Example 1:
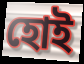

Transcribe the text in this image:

হোই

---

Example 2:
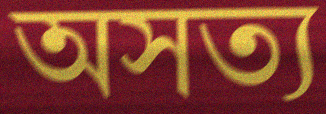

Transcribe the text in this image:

অসত্য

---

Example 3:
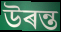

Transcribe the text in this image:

উৰন্ত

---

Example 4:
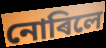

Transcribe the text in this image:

নোৰিলে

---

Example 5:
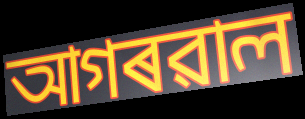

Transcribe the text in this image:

আগৰৱাল